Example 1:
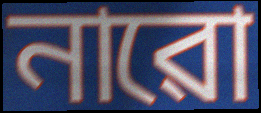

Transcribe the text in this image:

নাৱো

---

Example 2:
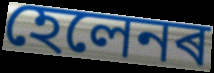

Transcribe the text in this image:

হেলেনৰ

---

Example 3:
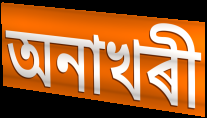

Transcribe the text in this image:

অনাখৰী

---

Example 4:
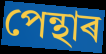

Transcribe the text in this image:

পেন্থাৰ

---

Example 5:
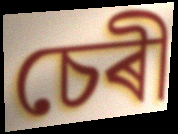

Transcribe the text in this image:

চেৰী